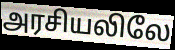
அரசியலிலே